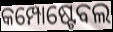
କମ୍ପୋଷ୍ଟେବଲ